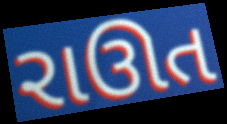
રાઊત